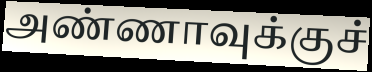
அண்ணாவுக்குச்